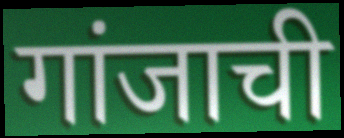
गांजाची